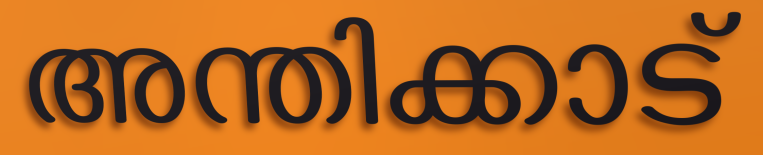
അന്തിക്കാട്